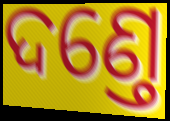
ଦଣ୍ତେ